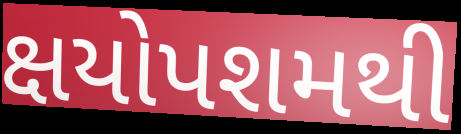
ક્ષયોપશમથી